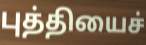
புத்தியைச்